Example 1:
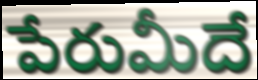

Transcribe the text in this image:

పేరుమీదే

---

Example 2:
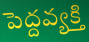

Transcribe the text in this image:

పెద్దవ్యక్తి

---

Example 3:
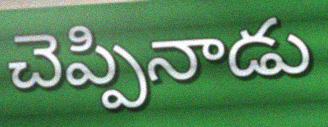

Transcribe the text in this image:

చెప్పినాడు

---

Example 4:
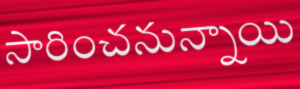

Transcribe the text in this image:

సారించనున్నాయి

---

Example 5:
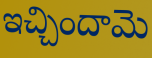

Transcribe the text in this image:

ఇచ్చిందామె